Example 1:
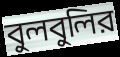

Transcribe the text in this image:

বুলবুলির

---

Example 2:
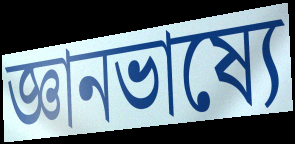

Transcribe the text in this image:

জ্ঞানভাষ্যে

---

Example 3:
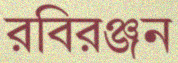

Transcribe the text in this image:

রবিরঞ্জন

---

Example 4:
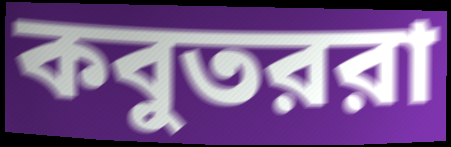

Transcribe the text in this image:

কবুতররা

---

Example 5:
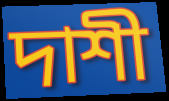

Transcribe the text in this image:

দাশী